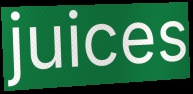
juices